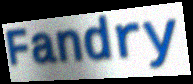
Fandry